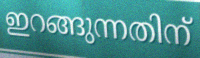
ഇറങ്ങുന്നതിന്